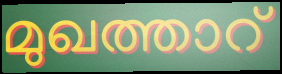
മുഖത്താറ്